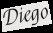
Diego